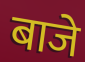
बाजे